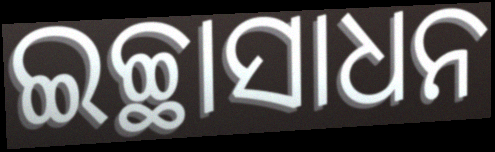
ଇଚ୍ଛାସାଧନ